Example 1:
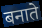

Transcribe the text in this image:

बनाते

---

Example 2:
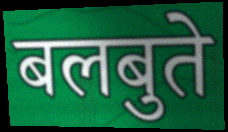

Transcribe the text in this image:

बलबुते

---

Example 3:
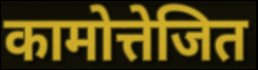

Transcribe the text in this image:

कामोत्तेजित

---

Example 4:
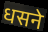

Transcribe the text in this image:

धसने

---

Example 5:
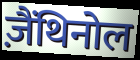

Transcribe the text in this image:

ज़ैंथिनोल